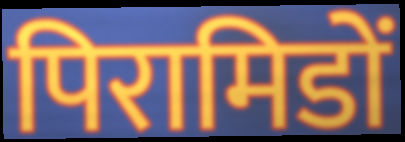
पिरामिडों